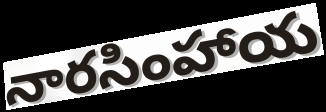
నారసింహాయ